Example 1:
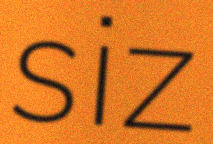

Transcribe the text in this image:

siz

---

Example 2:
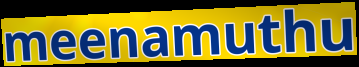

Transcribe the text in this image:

meenamuthu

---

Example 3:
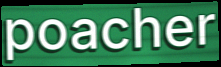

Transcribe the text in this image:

poacher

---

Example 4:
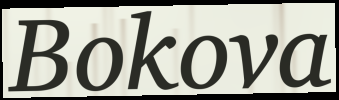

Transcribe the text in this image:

Bokova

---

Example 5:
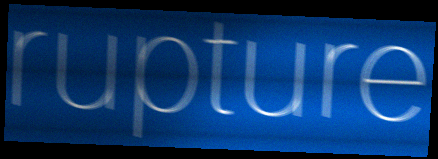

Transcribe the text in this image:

rupture